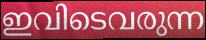
ഇവിടെവരുന്ന